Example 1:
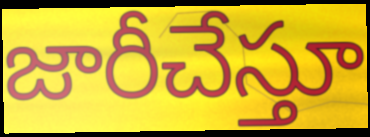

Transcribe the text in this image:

జారీచేస్తూ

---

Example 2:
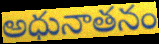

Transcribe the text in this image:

అధునాతనం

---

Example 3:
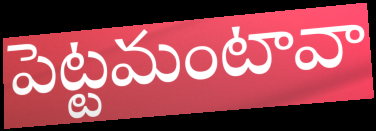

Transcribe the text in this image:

పెట్టమంటావా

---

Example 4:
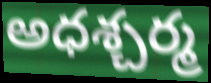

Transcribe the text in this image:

అధశ్చర్మ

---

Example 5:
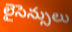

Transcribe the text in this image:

లైసెన్సులు